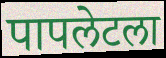
पापलेटला